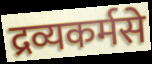
द्रव्यकर्मसे